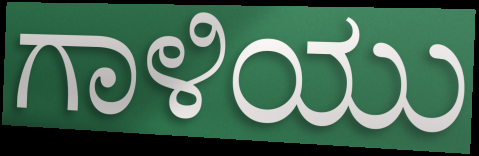
ಗಾಳಿಯು